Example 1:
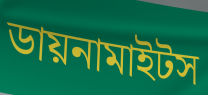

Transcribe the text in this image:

ডায়নামাইটস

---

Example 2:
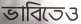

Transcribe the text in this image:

ভাবিতেও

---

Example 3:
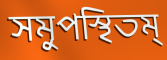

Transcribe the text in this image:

সমুপস্থিতম্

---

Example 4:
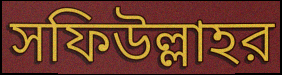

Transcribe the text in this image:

সফিউল্লাহর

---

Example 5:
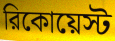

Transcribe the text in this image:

রিকোয়েস্ট